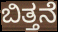
ಬಿತ್ತನೆ